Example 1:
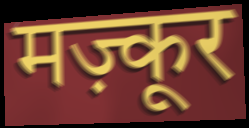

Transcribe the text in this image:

मज़्कूर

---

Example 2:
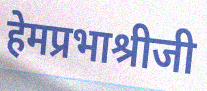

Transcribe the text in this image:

हेमप्रभाश्रीजी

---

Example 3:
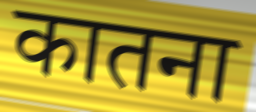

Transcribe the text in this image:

कातना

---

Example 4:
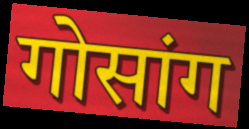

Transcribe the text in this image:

गोसांग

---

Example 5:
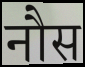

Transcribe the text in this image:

नौस